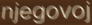
njegovoj